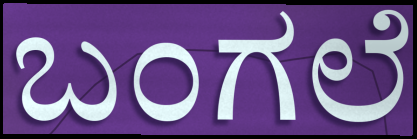
ಬಂಗಲೆ